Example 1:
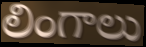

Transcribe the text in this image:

లింగాలు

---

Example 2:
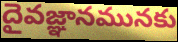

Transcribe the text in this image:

దైవజ్ఞానమునకు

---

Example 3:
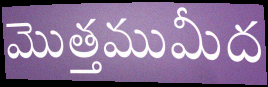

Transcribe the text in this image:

మొత్తముమీద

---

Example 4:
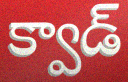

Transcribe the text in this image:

క్వాడ్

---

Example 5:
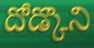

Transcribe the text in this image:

దోడ్కొని